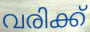
വരിക്ക്